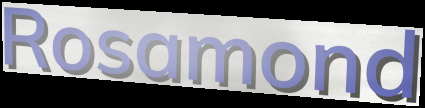
Rosamond